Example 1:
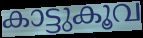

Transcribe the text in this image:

കാട്ടുകൂവ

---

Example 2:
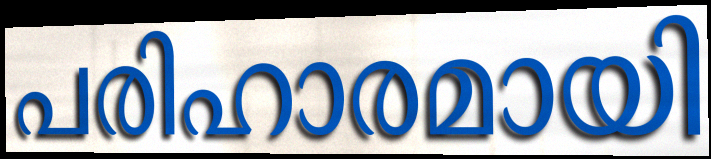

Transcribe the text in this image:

പരിഹാരമായി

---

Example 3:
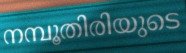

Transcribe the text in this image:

നമ്പൂതിരിയുടെ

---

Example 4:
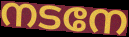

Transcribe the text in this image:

നടനേ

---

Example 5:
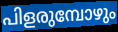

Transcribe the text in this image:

പിളരുമ്പോഴും